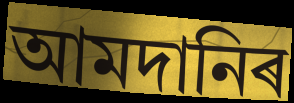
আমদানিৰ